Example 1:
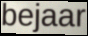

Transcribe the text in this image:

bejaar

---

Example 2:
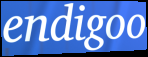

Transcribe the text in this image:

endigoo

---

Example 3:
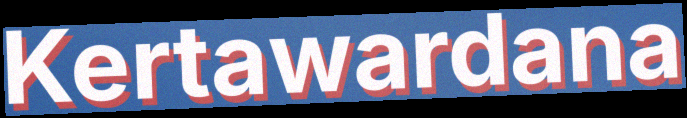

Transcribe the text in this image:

Kertawardana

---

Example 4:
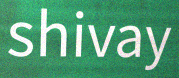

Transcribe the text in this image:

shivay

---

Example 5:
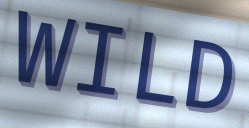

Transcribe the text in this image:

WILD